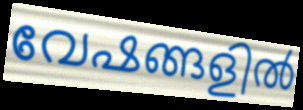
വേഷങ്ങളിൽ